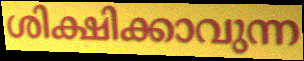
ശിക്ഷിക്കാവുന്ന